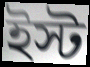
ইস্ট